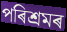
পৰিশ্ৰমৰ